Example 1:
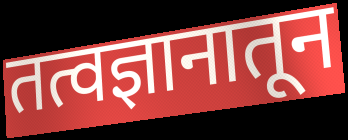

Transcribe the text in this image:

तत्वज्ञानातून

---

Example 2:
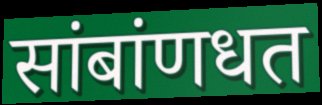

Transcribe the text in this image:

सांबांणधत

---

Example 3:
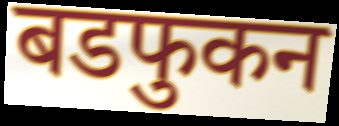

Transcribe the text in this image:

बडफुकन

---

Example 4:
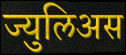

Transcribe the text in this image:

ज्युलिअस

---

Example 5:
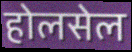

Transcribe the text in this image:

होलसेल